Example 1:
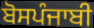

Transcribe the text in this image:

ਬੋਸਪੰਜਾਬੀ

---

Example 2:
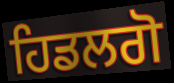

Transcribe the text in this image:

ਹਿਡਲਗੋ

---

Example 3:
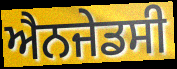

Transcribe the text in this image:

ਐਨਜੇਡਸੀ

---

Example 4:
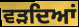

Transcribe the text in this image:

ਵੜਦਿਆਂ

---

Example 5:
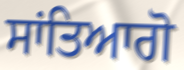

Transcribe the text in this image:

ਸਾਂਤਿਆਗੋ